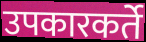
उपकारकर्ते